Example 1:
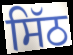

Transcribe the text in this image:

ਸਿੱਠ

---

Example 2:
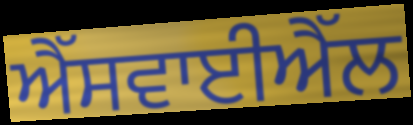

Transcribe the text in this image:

ਐੱਸਵਾਈਐੱਲ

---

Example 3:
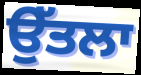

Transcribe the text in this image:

ਉੱਤਲਾ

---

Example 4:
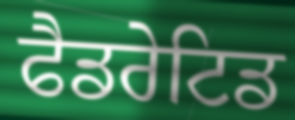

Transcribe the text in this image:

ਫੈਡਰੇਟਿਡ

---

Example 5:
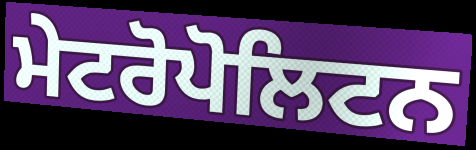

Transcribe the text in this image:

ਮੇਟਰੋਪੋਲਿਟਨ